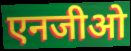
एनजीओ